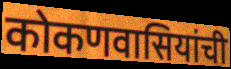
कोकणवासियांची